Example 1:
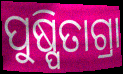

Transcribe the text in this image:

ପୁଷ୍ପିତାଗ୍ରା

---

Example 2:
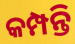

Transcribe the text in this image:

କମ୍ପନ୍ତି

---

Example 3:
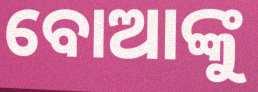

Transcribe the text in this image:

ବୋଆଙ୍କୁ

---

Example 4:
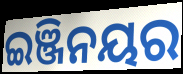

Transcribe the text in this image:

ଇଞ୍ଜିନୟର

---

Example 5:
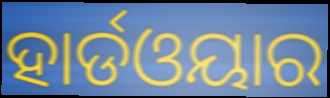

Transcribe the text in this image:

ହାର୍ଡଓୟାର